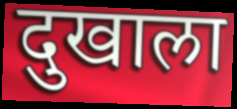
दुखाला